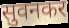
सुवनकर